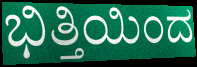
ಭಿತ್ತಿಯಿಂದ